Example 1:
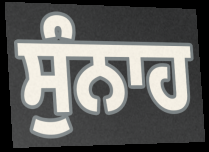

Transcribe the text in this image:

ਸੁੰਨਾਹ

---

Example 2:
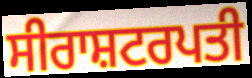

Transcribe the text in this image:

ਸੀਰਾਸ਼ਟਰਪਤੀ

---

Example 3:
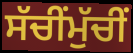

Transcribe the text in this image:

ਸੱਚੀਂਮੁੱਚੀਂ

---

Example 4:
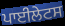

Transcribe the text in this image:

ਪਾਈਲੇਟਸ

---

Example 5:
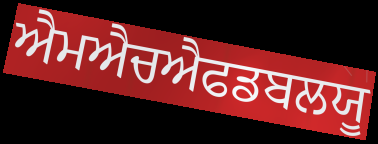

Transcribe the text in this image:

ਐਮਐਚਐਫਡਬਲਯੂ